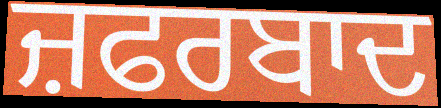
ਜ਼ਫਰਬਾਦ